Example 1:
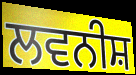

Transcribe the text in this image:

ਲਵਨੀਸ਼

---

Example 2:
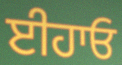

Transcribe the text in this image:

ਈਹਾਓ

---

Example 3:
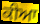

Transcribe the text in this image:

ਕੀਆ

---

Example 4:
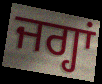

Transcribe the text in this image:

ਜਗ੍ਹਾਂ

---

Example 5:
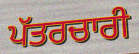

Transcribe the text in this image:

ਪੱਤਰਚਾਰੀ